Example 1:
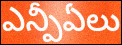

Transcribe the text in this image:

ఎన్పీఏలు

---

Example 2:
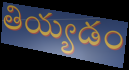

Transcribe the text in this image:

తియ్యడం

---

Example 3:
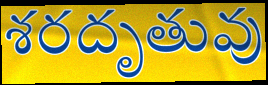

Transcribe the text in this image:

శరదృతువు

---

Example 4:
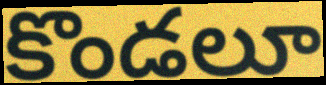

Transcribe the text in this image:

కొండలూ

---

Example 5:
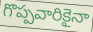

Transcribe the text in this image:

గొప్పవారికైనా